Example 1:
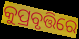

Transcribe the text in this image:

କୁପ୍ରବୃତ୍ତିରେ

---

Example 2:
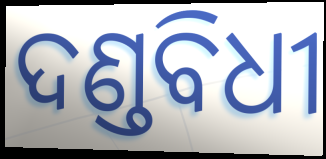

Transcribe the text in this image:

ଦଣ୍ଡବିଧୀ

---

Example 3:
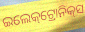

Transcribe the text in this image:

ଇଲେକ୍‌ଟ୍ରୋନିକ୍‌ସ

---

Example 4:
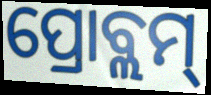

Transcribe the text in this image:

ପ୍ରୋବ୍ଲମ୍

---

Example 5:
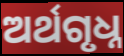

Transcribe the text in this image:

ଅର୍ଥଗୃଧ୍ନ